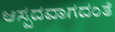
ಆಸ್ಪದವಾಗದಂತೆ